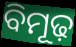
ବିମୂଢ଼